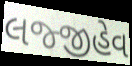
લજ્જીહેવ